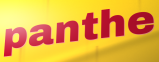
panthe